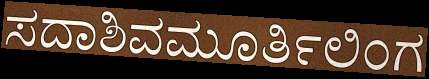
ಸದಾಶಿವಮೂರ್ತಿಲಿಂಗ